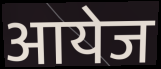
आयेज